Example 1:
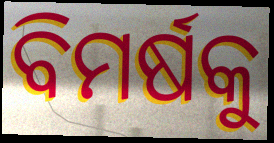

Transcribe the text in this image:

ବିମର୍ଷକୁ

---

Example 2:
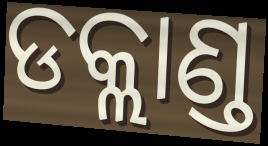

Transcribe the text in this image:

ଡକ୍ଲାଣ୍ଡ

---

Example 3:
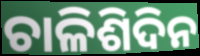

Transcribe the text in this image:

ଚାଳିଶିଦିନ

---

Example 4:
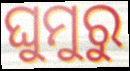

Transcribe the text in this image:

ଘୁମୁରୁ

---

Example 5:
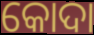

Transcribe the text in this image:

କୋଦା